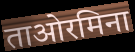
ताओरमिना